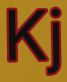
Kj